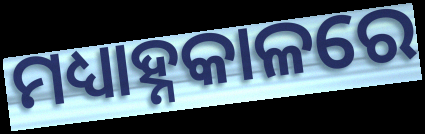
ମଧ୍ୟାହ୍ନକାଳରେ